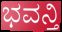
ಭವನ್ತಿ